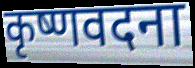
कृष्णवदना